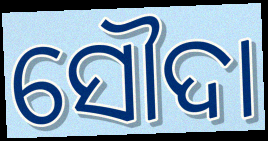
ସୌଦା